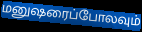
மனுஷரைப்போலவும்